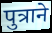
पुत्राने